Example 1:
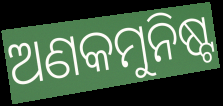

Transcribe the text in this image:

ଅଣକମୁନିଷ୍ଟ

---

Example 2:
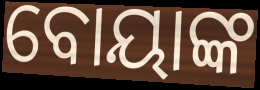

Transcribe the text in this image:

ବୋୟାଙ୍କ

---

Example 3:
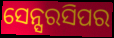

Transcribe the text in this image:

ସେନ୍ସରସିପର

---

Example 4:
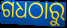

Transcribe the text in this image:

ଗଧଠାରୁ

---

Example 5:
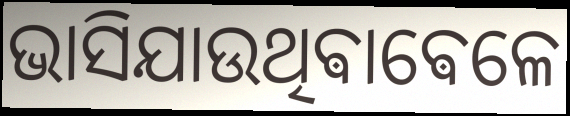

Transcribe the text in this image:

ଭାସିଯାଉଥିଵାଵେଳେ